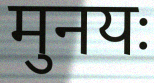
मुनयः